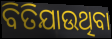
ବିତିଯାଉଥିବା